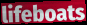
lifeboats